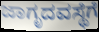
ಜಾಗೃದವಸ್ಥೆಗೆ